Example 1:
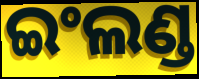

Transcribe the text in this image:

ଇଂଲଣ୍ଡ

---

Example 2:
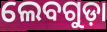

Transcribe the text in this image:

ଲେବଗୁଡ଼ା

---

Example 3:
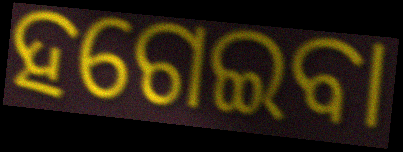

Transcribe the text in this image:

ହଗେଇବା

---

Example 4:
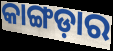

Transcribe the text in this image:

କାଙ୍ଗଡ଼ାର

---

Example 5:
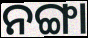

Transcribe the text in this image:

ନଙ୍ଗା